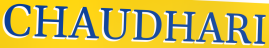
CHAUDHARI